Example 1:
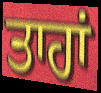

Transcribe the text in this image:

ਤਾਹਾਂ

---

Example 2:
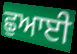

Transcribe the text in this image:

ਛੁਆਈ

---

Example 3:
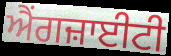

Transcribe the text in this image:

ਐਂਗਜ਼ਾਈਟੀ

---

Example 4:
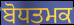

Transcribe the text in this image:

ਬੋਧਤਮਕ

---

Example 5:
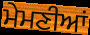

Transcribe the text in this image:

ਮੇਮਣੀਆਂ